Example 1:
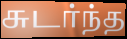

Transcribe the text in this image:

சுடர்ந்த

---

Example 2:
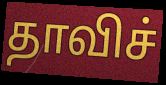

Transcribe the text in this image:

தாவிச்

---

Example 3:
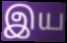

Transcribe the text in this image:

இய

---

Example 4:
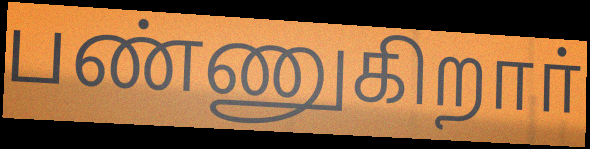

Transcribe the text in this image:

பண்ணுகிறார்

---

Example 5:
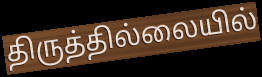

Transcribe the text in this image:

திருத்தில்லையில்